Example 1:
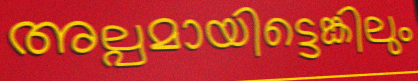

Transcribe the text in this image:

അല്പമായിട്ടെങ്കിലും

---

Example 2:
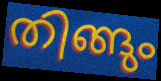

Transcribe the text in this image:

തിങ്ങും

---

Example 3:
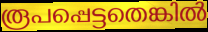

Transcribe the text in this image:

രൂപപ്പെട്ടതെങ്കിൽ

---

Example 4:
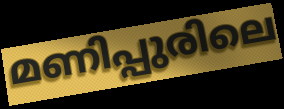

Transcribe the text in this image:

മണിപ്പുരിലെ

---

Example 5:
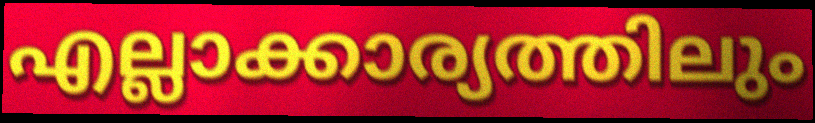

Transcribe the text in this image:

എല്ലാക്കാര്യത്തിലും